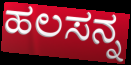
ಹಲಸನ್ನ